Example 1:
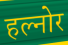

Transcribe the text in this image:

हल्नोर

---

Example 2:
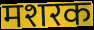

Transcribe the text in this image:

मशरक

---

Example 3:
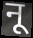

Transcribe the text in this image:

नू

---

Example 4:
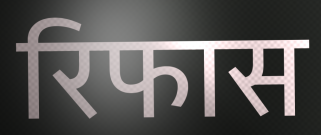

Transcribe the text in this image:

रिफास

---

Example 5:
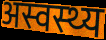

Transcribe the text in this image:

अस्वस्थ्य